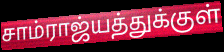
சாம்ராஜ்யத்துக்குள்